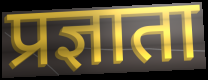
प्रज्ञाता